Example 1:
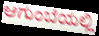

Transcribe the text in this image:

ಆಗುಂಬೆಯಲ್ಲಿ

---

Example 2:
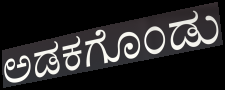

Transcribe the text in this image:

ಅಡಕಗೊಂಡು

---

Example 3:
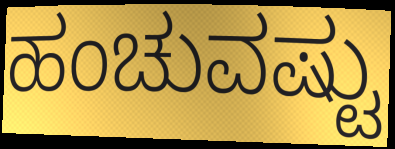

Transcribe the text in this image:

ಹಂಚುವಷ್ಟು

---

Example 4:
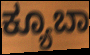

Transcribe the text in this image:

ಕ್ಯೂಬಾ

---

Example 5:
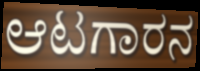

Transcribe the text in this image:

ಆಟಗಾರನ